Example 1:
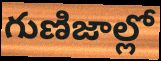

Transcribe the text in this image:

గుణిజాల్లో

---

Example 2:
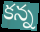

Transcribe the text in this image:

కన్న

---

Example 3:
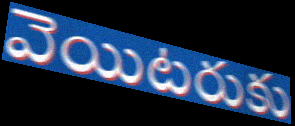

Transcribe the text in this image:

వెయిటరుకు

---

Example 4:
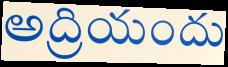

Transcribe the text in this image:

అద్రియందు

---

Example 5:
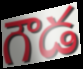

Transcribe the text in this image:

గౌడ